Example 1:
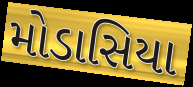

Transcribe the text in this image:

મોડાસિયા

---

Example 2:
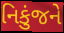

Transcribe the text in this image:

નિકુંજને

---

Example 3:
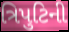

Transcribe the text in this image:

ત્રિપુટિની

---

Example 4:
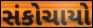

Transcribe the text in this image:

સંકોચાયો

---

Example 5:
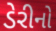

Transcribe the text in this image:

ડેરીનો